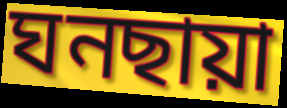
ঘনছায়া